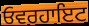
ਓਵਰਹਾਇਟ